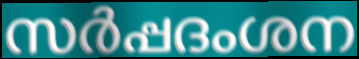
സർപ്പദംശന